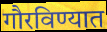
गौरविण्यात